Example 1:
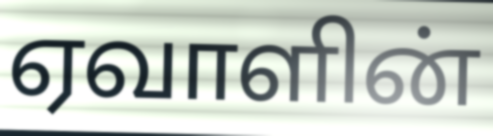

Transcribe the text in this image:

ஏவாளின்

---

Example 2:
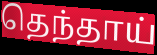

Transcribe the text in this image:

தெந்தாய்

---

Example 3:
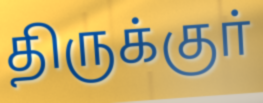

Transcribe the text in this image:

திருக்குர்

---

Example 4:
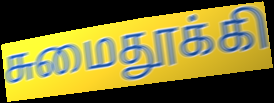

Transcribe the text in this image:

சுமைதூக்கி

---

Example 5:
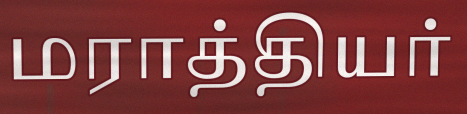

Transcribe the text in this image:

மராத்தியர்